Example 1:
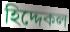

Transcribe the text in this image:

হিদ্দেকল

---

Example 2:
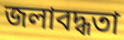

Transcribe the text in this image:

জলাবদ্ধতা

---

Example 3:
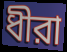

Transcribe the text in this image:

ধীরা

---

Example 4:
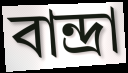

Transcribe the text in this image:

বান্দ্রা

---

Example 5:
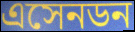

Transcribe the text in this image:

এসেনডন